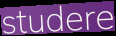
studere